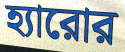
হ্যারোর